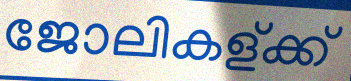
ജോലികള്ക്ക്